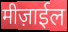
मीज़ाईल